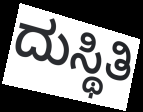
ದುಸ್ಥಿತಿ